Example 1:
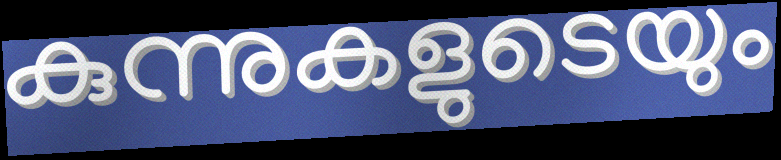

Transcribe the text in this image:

കുന്നുകളുടെയും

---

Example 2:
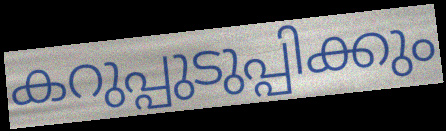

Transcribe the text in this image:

കറുപ്പുടുപ്പിക്കും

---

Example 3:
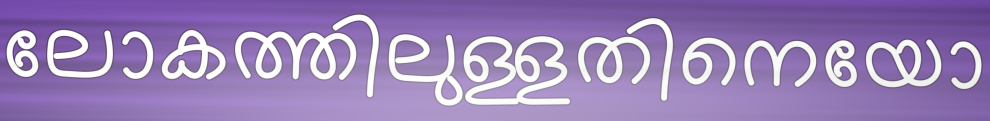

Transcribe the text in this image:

ലോകത്തിലുള്ളതിനെയോ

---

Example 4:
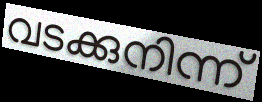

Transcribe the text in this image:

വടക്കുനിന്ന്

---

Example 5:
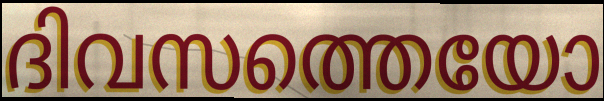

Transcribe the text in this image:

ദിവസത്തെയോ